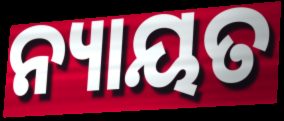
ନ୍ୟାୟତ